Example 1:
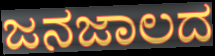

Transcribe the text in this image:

ಜನಜಾಲದ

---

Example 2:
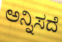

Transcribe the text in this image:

ಅನ್ನಿಸದೆ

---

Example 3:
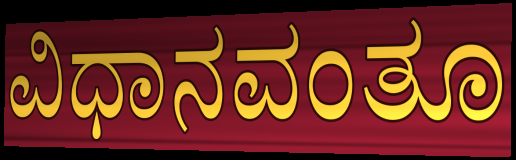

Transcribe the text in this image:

ವಿಧಾನವಂತೂ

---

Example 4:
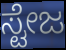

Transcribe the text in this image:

ಸ್ಟೇಜ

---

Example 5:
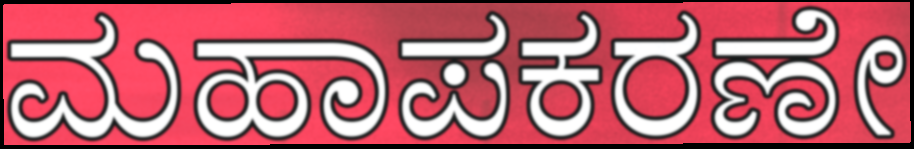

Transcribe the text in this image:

ಮಹಾಪಕರಣೇ